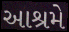
આશ્રમે